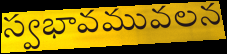
స్వభావమువలన